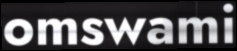
omswami